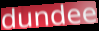
dundee